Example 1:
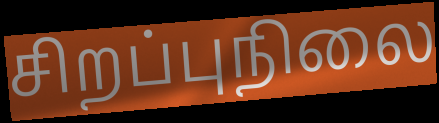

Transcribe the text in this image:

சிறப்புநிலை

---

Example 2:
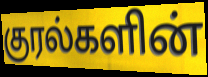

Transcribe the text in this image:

குரல்களின்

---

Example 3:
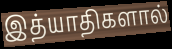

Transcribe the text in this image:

இத்யாதிகளால்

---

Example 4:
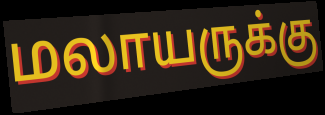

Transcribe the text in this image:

மலாயருக்கு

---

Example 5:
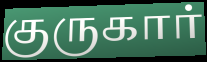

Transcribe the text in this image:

குருகார்